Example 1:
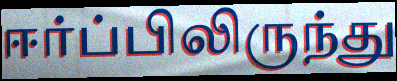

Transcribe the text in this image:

ஈர்ப்பிலிருந்து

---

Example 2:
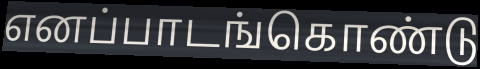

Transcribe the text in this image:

எனப்பாடங்கொண்டு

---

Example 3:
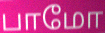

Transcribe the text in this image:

பாமோ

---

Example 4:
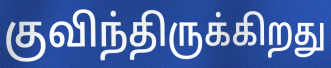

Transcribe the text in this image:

குவிந்திருக்கிறது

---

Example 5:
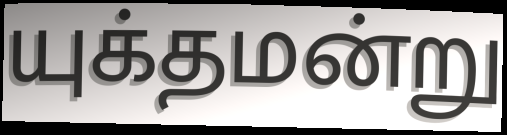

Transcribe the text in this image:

யுக்தமன்று